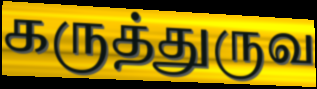
கருத்துருவ